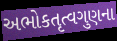
અભોકતૃત્વગુણના